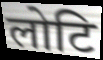
लोटि